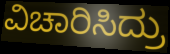
ವಿಚಾರಿಸಿದ್ರು